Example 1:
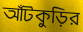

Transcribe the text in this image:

আঁটকুড়ির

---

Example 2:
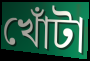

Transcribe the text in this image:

খোঁটা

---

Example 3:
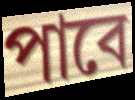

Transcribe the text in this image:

পাবে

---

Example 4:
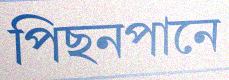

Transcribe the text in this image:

পিছনপানে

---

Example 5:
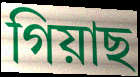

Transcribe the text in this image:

গিয়াছ